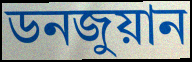
ডনজুয়ান